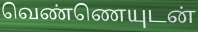
வெண்ணெயுடன்